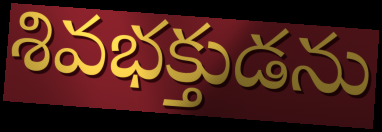
శివభక్తుడను